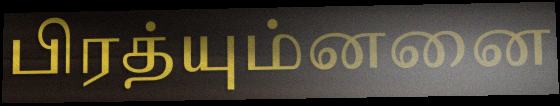
பிரத்யும்னனை